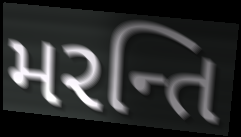
મરન્તિ